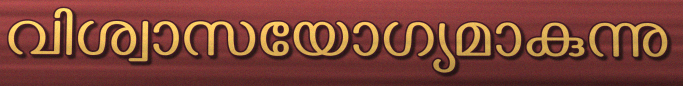
വിശ്വാസയോഗ്യമാകുന്നു